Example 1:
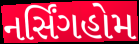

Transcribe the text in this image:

નર્સિંગહોમ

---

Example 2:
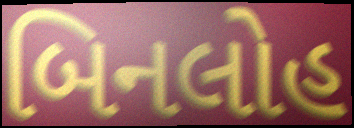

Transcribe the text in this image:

બિનલોહ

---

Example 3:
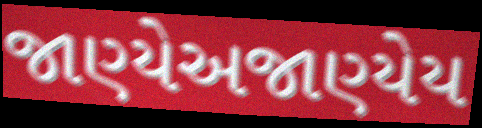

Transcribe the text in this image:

જાણ્યેઅજાણ્યેય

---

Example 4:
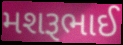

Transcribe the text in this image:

મશરૂભાઈ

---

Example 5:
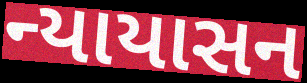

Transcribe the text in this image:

ન્યાયાસન